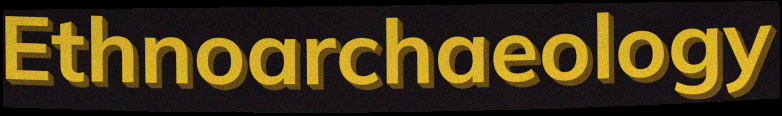
Ethnoarchaeology